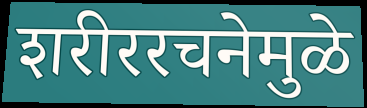
शरीररचनेमुळे